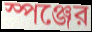
স্পঞ্জের